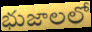
భుజాలలో